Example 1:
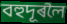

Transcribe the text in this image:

বহুদূৰলৈ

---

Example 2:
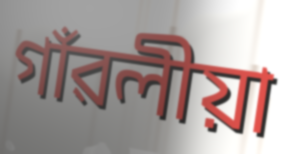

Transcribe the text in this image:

গাঁৱলীয়া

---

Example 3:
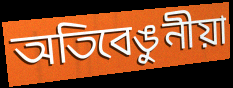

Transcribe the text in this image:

অতিবেঙুনীয়া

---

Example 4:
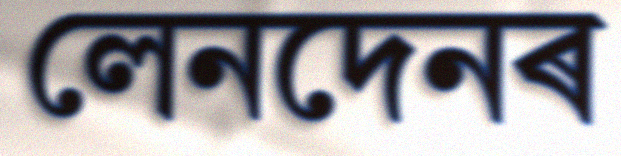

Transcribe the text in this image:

লেনদেনৰ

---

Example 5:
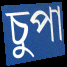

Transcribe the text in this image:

চুপা